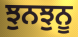
ਝੁਨਝੁਨੂ